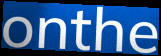
onthe